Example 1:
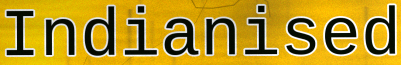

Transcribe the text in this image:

Indianised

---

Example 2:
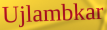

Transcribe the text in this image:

Ujlambkar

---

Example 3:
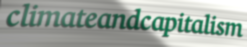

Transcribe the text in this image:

climateandcapitalism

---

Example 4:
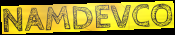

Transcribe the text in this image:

NAMDEVCO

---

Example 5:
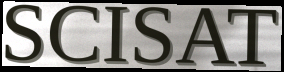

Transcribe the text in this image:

SCISAT